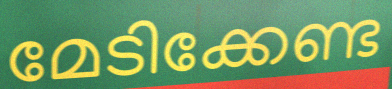
മേടിക്കേണ്ട